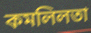
কমলিলতা